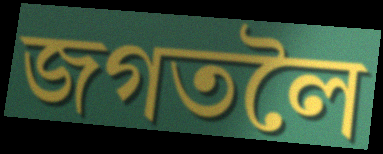
জগতলৈ